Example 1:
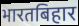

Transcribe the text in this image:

भारतबिहार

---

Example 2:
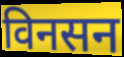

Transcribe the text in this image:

विनसन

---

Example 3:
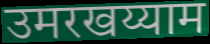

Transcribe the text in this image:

उमरखय्याम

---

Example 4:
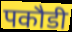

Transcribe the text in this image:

पकौडी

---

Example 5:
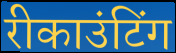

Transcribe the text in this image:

रीकाउंटिंग